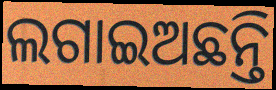
ଲଗାଇଅଛନ୍ତି